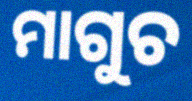
ମାଗୁଚ